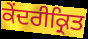
ਕੇਂਦਰੀਕ੍ਰਿਤ